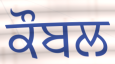
ਕੌਬਲ